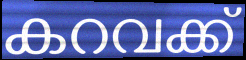
കറവക്ക്